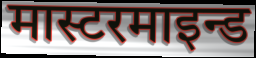
मास्टरमाइन्ड